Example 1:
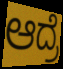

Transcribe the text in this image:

ಆದ್ರೆ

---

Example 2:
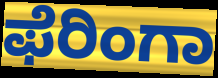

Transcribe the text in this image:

ಫೆರಿಂಗಾ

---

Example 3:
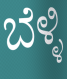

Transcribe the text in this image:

ಬೆಳ್ಳಿ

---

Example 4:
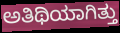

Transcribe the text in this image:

ಅತಿಥಿಯಾಗಿತ್ತು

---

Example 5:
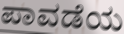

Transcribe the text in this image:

ಪಾವಡೆಯ